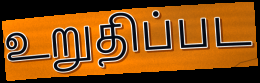
உறுதிப்பட